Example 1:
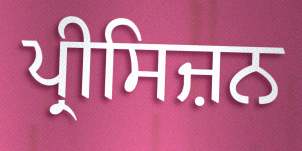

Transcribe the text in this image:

ਪ੍ਰੀਸਿਜ਼ਨ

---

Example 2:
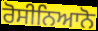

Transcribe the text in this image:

ਰੋਸੀਨਿਆਨੋ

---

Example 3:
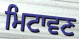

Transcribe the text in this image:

ਮਿਟਾਵਣ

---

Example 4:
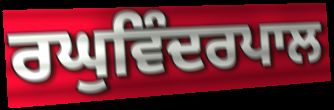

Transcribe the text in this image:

ਰਘੁਵਿੰਦਰਪਾਲ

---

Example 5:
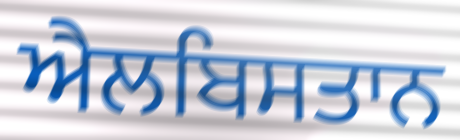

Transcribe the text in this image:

ਐਲਬਿਸਤਾਨ